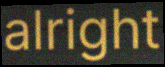
alright